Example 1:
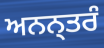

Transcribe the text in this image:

ਅਨਨ੍ਤਰੰ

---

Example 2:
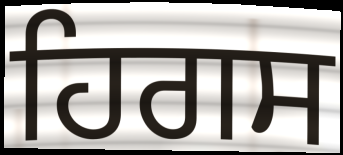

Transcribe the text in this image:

ਹਿਗਸ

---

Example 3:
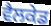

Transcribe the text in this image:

ਵੈਲਕੇਡ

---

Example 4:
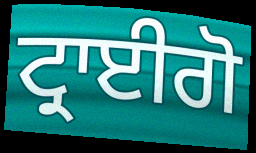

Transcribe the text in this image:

ਟ੍ਰਾਈਗੋ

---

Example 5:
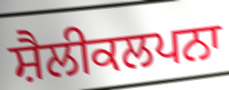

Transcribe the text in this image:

ਸ਼ੈਲੀਕਲਪਨਾ